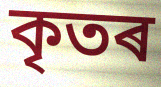
কৃতৰ